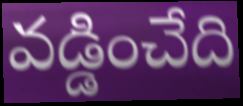
వడ్డించేది